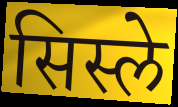
सिस्ले